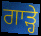
ਗਾੜ੍ਹੇ